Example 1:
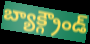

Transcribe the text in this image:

బ్యాక్గ్రౌండ్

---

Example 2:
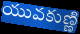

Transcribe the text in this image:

యువకుణ్ణి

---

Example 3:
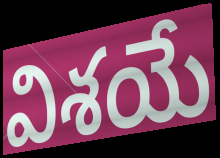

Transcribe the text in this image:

విశయే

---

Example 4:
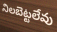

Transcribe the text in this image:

నిలబెట్టలేవు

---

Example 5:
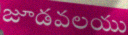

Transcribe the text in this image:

జూడవలయు